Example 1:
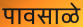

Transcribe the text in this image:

पावसाळे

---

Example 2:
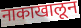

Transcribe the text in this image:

नाकाखालून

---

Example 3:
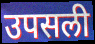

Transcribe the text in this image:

उपसली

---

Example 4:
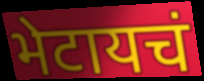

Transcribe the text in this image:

भेटायचं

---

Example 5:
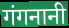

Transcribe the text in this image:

गंगनानी